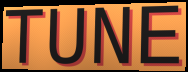
TUNE